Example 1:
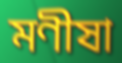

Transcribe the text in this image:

মণীষা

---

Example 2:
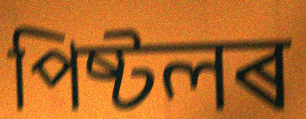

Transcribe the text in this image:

পিষ্টলৰ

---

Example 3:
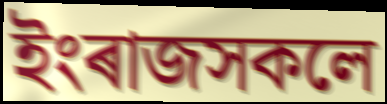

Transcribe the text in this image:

ইংৰাজসকলে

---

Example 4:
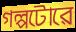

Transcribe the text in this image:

গল্পটোৱে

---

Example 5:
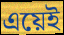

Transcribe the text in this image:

এয়েই